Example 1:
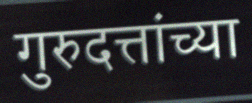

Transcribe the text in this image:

गुरुदत्तांच्या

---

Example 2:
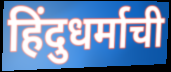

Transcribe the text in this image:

हिंदुधर्माची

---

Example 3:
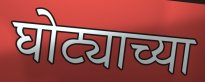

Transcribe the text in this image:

घोट्याच्या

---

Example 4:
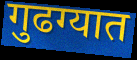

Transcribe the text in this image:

गुढग्यात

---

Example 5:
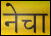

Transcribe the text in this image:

नेचा